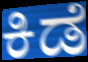
ಕಿಡೆ